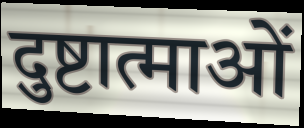
दुष्टात्माओं